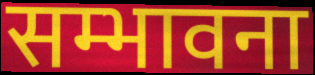
सम्भावना